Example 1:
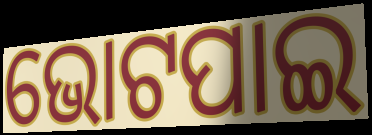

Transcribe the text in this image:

ଭୋଟପାଇ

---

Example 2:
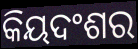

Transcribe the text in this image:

କିୟଦଂଶର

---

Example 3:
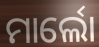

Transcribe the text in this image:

ମାର୍ଲୋ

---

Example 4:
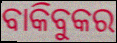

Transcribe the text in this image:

ବାକିବୁକର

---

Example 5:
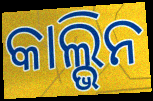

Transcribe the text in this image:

କାଲ୍ଭିନ